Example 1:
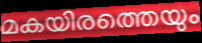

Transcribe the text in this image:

മകയിരത്തെയും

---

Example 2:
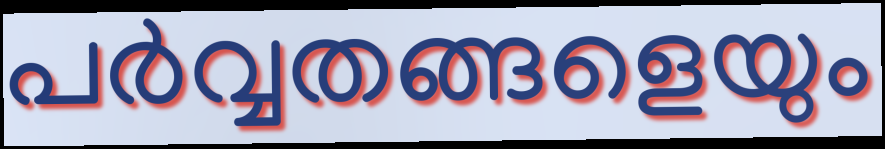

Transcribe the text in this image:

പർവ്വതങ്ങളെയും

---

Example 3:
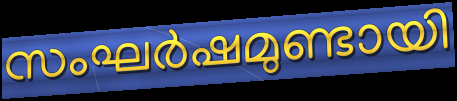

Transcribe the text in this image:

സംഘർഷമുണ്ടായി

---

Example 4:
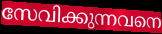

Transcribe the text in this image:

സേവിക്കുന്നവനെ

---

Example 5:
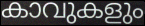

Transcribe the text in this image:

കാവുകളും